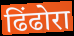
ढिंढोरा